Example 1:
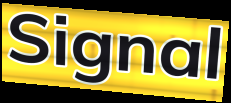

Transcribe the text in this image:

Signal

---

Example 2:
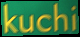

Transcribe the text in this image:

kuchi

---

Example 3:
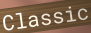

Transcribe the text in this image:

Classic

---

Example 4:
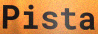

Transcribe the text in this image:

Pista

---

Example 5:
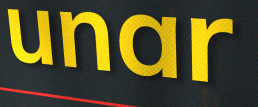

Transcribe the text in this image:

unar